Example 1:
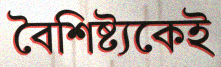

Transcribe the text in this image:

বৈশিষ্ট্যকেই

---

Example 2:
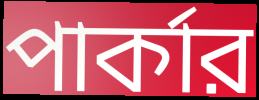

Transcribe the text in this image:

পার্কার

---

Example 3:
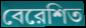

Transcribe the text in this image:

বেরেশিত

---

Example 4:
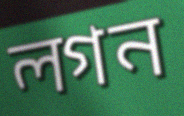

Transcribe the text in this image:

লগন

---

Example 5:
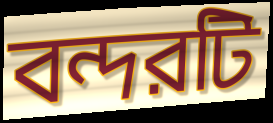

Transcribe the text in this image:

বন্দরটি